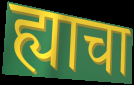
ह्याचा